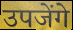
उपजेंगे